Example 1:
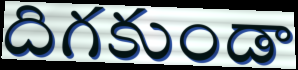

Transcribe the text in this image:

దిగకుండా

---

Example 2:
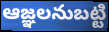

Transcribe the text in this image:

ఆజ్ఞలనుబట్టి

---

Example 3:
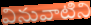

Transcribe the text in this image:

వినువాటిని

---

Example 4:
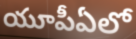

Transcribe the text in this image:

యూపీఏలో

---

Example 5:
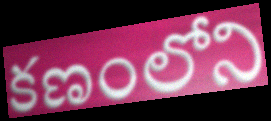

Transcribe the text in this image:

కణంలోని